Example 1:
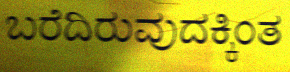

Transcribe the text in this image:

ಬರೆದಿರುವುದಕ್ಕಿಂತ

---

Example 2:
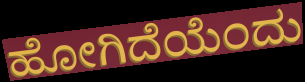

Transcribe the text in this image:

ಹೋಗಿದೆಯೆಂದು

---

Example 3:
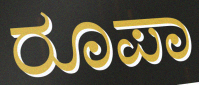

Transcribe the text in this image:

ರೂಪಾ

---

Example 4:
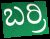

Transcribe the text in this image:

ಬರ್ರಿ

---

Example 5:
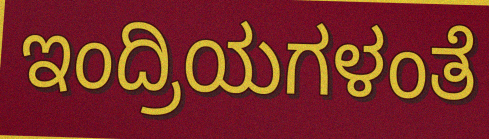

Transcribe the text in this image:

ಇಂದ್ರಿಯಗಳಂತೆ